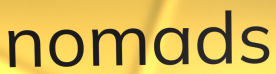
nomads